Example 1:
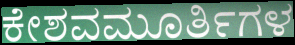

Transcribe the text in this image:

ಕೇಶವಮೂರ್ತಿಗಳ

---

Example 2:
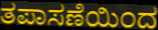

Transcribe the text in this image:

ತಪಾಸಣೆಯಿಂದ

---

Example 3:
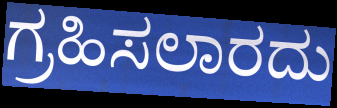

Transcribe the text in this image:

ಗ್ರಹಿಸಲಾರದು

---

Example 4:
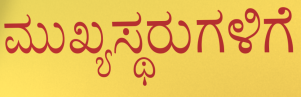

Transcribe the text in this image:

ಮುಖ್ಯಸ್ಥರುಗಳಿಗೆ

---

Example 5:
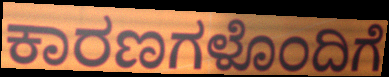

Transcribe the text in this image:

ಕಾರಣಗಳೊಂದಿಗೆ